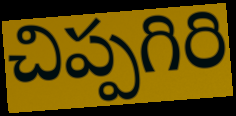
చిప్పగిరి